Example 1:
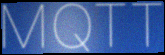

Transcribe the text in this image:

MQTT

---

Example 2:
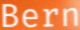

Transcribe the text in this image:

Bern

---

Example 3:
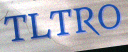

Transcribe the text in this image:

TLTRO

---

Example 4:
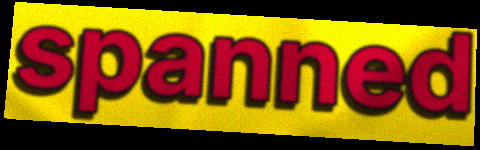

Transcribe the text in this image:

spanned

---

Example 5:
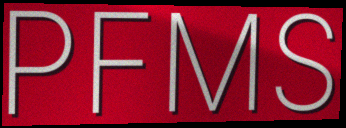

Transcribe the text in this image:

PFMS